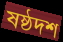
ষষ্ঠদশ